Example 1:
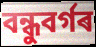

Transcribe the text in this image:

বন্ধুবৰ্গৰ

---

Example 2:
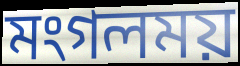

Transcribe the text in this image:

মংগলময়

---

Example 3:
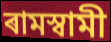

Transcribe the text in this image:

ৰামস্বামী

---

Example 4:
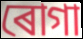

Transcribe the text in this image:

ৰোগা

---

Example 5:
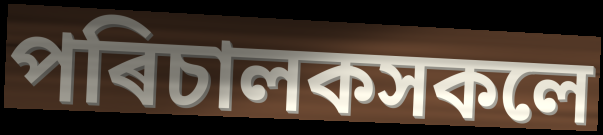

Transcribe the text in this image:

পৰিচালকসকলে